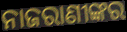
ନାଜରାଣୀଙ୍କର